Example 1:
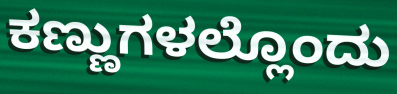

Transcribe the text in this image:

ಕಣ್ಣುಗಳಲ್ಲೊಂದು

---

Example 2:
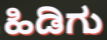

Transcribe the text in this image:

ಹಿಡಿಗು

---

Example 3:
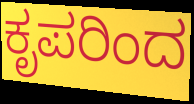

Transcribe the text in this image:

ಕೃಪರಿಂದ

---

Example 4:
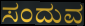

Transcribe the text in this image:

ಸಂದುವ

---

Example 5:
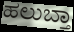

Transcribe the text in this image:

ಹಲುಬ್ತಾ